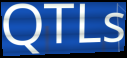
QTLs